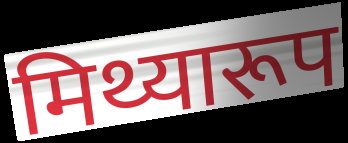
मिथ्यारूप